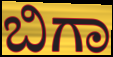
ಬಿಗಾ